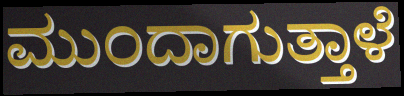
ಮುಂದಾಗುತ್ತಾಳೆ